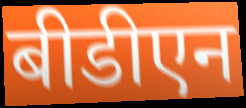
बीडीएन